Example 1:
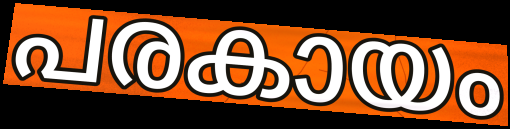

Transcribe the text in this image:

പരകായം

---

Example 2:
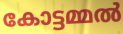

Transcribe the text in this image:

കോട്ടമ്മൽ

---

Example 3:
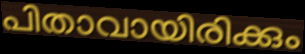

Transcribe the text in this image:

പിതാവായിരിക്കും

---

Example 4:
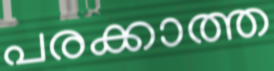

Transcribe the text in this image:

പരക്കാത്ത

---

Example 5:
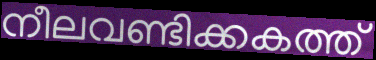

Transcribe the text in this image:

നീലവണ്ടിക്കകത്ത്